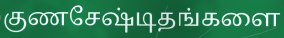
குணசேஷ்டிதங்களை